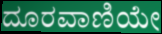
ದೂರವಾಣಿಯೇ